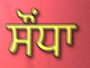
ਸੌਂਧਾ